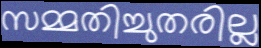
സമ്മതിച്ചുതരില്ല